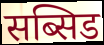
सब्सिड